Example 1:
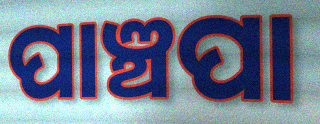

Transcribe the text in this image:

ପାଞ୍ଚପା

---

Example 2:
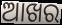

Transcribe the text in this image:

ଆଖର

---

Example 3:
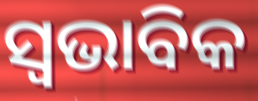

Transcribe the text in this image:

ସ୍ୱଭାବିକ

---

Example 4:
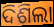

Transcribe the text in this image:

ଦିଶିଲା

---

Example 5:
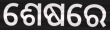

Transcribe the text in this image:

ଶେଷରେ